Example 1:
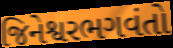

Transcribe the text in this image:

જિનેશ્વરભગવંતો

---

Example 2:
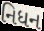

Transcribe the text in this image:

નિધન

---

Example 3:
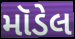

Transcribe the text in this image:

મૉડેલ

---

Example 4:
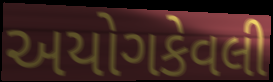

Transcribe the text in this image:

અયોગકેવલી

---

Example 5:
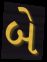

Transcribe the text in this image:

બે